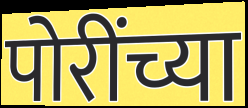
पोरींच्या